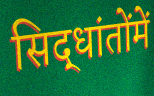
सिद्धांतोंमें